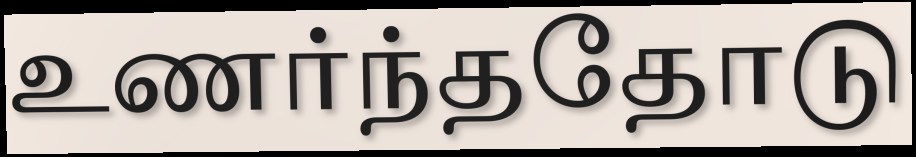
உணர்ந்ததோடு